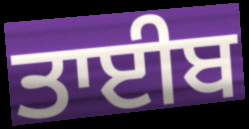
ਤਾਈਬ